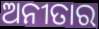
ଅନୀତାର